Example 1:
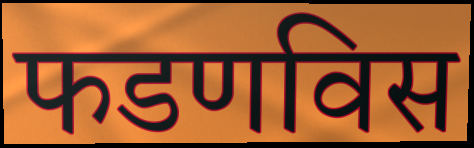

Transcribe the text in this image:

फडणविस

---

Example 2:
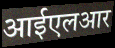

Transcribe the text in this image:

आईएलआर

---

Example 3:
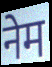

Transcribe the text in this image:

नेम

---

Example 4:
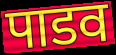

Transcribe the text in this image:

पाडव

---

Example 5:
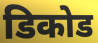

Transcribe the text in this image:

डिकोड